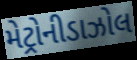
મેટ્રોનીડાઝોલ